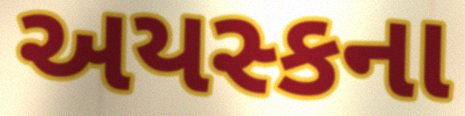
અયસ્કના